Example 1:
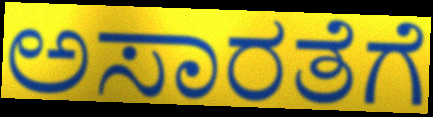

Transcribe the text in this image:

ಅಸಾರತೆಗೆ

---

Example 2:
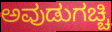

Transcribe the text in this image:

ಅವುಡುಗಚ್ಚಿ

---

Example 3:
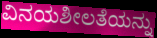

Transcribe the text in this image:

ವಿನಯಶೀಲತೆಯನ್ನು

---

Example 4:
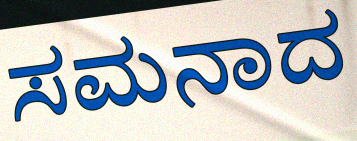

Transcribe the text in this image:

ಸಮನಾದ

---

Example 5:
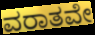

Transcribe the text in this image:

ವರಾತವೇ